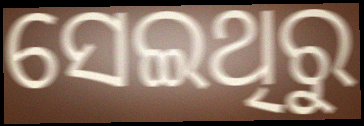
ସେଇଥିରୁ